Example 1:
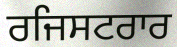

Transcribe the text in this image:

ਰਜਿਸਟਰਾਰ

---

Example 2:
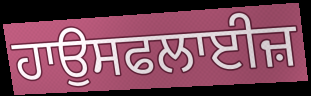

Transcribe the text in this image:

ਹਾਉਸਫਲਾਈਜ਼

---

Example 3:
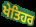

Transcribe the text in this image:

ਖੇਤਿਹਰ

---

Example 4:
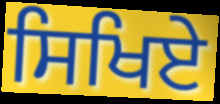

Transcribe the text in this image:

ਸਿਖਿਏ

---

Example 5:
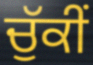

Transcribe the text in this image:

ਚੁੱਕੀਂ